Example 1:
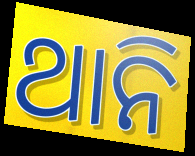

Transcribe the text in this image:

ଥାନି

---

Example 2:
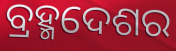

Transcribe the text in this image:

ବ୍ରହ୍ମଦେଶର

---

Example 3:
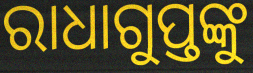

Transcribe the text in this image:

ରାଧାଗୁପ୍ତଙ୍କୁ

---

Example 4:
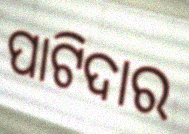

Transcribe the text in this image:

ପାଟିଦାର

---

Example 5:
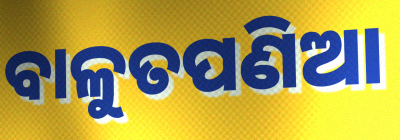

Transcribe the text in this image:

ବାଳୁତପଣିଆ